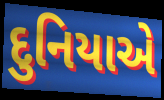
દુનિયાએ